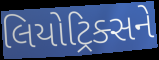
લિયોટ્રિક્સને